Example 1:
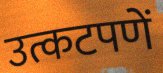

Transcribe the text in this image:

उत्कटपणें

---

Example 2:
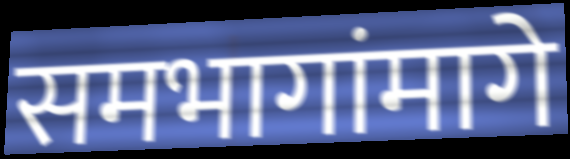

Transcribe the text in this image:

समभागांमागे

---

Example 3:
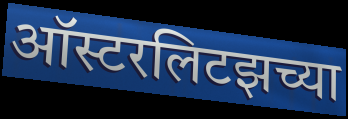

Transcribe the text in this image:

ऑस्टरलिटझच्या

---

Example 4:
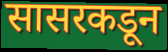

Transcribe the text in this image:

सासरकडून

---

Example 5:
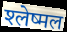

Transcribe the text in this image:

श्लेष्मल